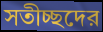
সতীচ্ছদের